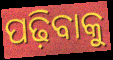
ପଢ଼ିବାକୁ